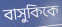
বাসুকিকে